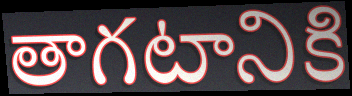
తాగటానికి